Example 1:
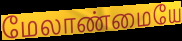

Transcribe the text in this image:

மேலாண்மையே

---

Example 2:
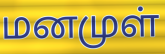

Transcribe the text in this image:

மனமுள்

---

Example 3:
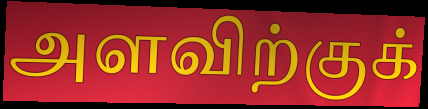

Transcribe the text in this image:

அளவிற்குக்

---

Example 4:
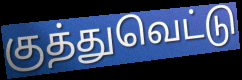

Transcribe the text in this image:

குத்துவெட்டு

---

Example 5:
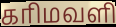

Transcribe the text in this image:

கரிமவளி